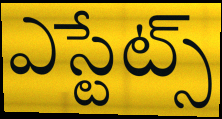
ఎస్టేట్స్